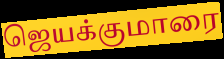
ஜெயக்குமாரை